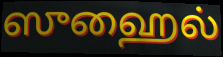
ஸுஹைல்